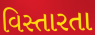
વિસ્તારતા